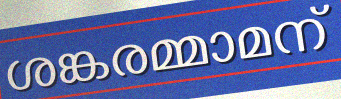
ശങ്കരമ്മാമന്